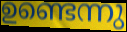
ഉണ്ടെന്നു